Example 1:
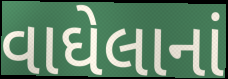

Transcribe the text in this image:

વાઘેલાનાં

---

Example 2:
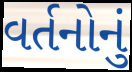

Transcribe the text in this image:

વર્તનોનું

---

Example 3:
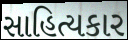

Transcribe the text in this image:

સાહિત્યકાર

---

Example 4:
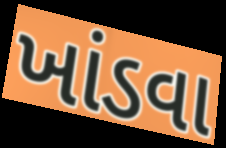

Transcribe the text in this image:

ખાંડવા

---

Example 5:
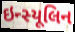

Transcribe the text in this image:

ઇન્સ્યૂલિન